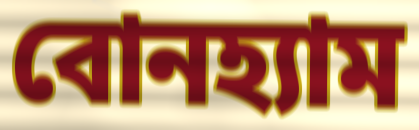
বোনহ্যাম